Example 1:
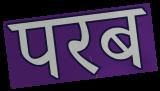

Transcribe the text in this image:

परब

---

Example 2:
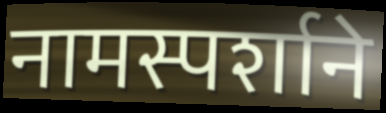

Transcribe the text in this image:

नामस्पर्शाने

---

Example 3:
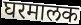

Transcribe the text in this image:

घरमालक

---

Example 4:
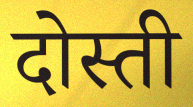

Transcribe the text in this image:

दोस्ती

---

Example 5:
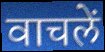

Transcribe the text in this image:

वाचलें